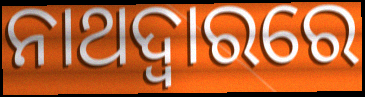
ନାଥଦ୍ୱାରରେ